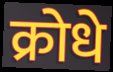
क्रोधे